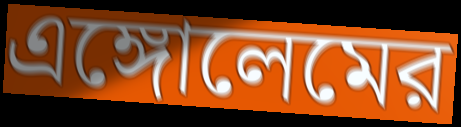
এঙ্গোলেমের